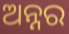
ଅନ୍ନର